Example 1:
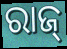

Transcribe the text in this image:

ରାଜ୍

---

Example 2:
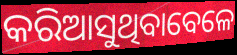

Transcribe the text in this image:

କରିଆସୁଥିବାବେଳେ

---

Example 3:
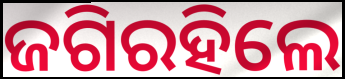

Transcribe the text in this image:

ଜଗିରହିଲେ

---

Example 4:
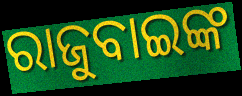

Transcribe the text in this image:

ରାଜୁବାଇଙ୍କ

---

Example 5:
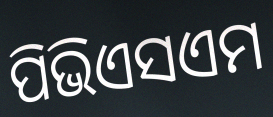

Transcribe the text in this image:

ପିଭିଏସଏମ